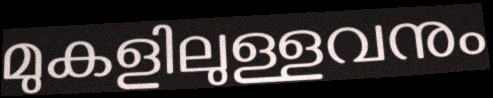
മുകളിലുള്ളവനും